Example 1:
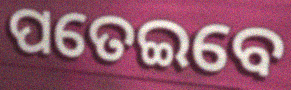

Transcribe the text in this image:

ପତେଇବେ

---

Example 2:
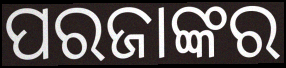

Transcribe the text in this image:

ପରଜାଙ୍କର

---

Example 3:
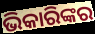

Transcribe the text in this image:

ଭିକାରିଙ୍କର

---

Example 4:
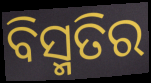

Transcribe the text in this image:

ବିସ୍ମତିର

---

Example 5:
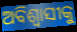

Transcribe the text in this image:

ଅବିଶ୍ୱାସୀକୁ